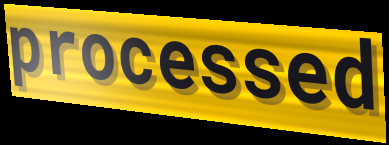
processed